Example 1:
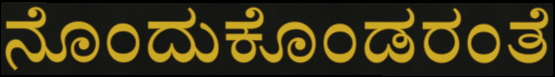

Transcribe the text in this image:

ನೊಂದುಕೊಂಡರಂತೆ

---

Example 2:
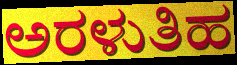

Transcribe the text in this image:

ಅರಳುತಿಹ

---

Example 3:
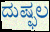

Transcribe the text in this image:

ದುಷ್ಫಲ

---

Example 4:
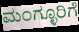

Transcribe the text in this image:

ಮಂಗ್ಳೂರಿಗೆ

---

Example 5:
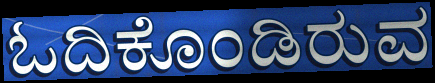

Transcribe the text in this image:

ಓದಿಕೊಂಡಿರುವ